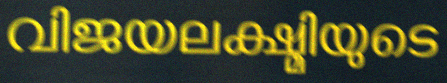
വിജയലക്ഷ്മിയുടെ